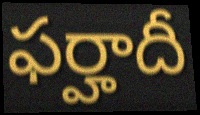
ఫర్హాదీ